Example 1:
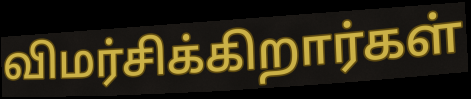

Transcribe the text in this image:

விமர்சிக்கிறார்கள்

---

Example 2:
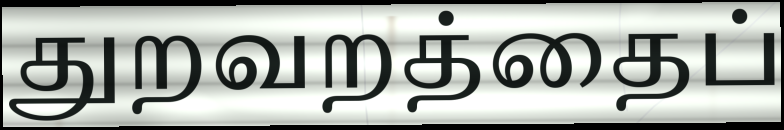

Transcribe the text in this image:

துறவறத்தைப்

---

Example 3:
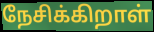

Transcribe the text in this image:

நேசிக்கிறாள்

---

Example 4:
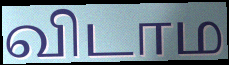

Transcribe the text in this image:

விடாம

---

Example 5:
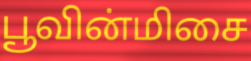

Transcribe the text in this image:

பூவின்மிசை